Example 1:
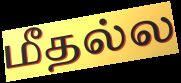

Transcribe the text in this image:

மீதல்ல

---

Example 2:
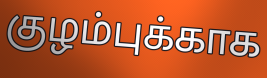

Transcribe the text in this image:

குழம்புக்காக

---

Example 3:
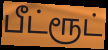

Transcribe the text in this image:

பீட்ரூட்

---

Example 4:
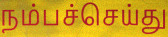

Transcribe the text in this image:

நம்பச்செய்து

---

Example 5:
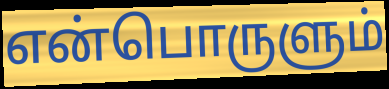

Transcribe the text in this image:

என்பொருளும்